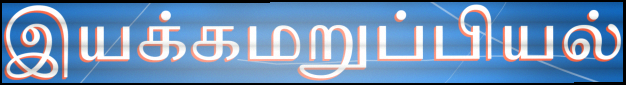
இயக்கமறுப்பியல்